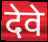
देवे